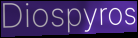
Diospyros